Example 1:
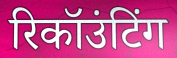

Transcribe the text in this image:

रिकॉउंटिंग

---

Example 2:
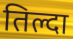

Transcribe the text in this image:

तिल्दा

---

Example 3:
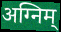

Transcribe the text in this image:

अग्निम्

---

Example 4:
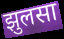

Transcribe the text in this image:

झुलसा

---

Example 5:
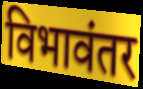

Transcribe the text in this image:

विभावंतर